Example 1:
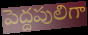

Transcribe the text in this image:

పెద్దపులిగా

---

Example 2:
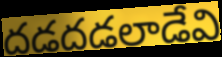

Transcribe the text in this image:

దడదడలాడేవి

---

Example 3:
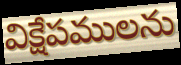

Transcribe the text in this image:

విక్షేపములను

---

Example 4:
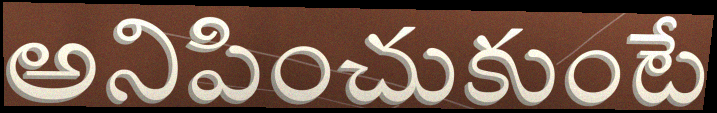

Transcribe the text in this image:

అనిపించుకుంటే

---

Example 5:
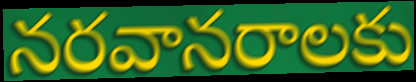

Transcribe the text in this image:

నరవానరాలకు